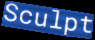
Sculpt